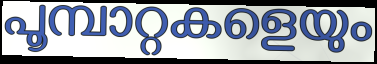
പൂമ്പാറ്റകളെയും